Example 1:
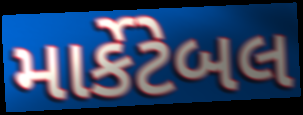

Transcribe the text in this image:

માર્કેટેબલ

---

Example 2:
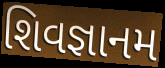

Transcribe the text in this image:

શિવજ્ઞાનમ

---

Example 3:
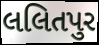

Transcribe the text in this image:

લલિતપુર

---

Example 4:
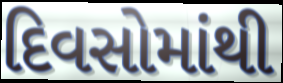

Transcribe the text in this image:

દિવસોમાંથી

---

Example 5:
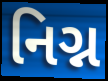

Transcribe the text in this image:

નિગ્ન